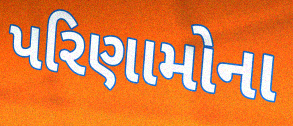
પરિણામોના